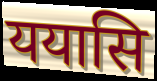
ययासि